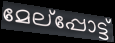
മേല്പ്പോട്ട്